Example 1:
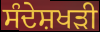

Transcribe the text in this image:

ਸੰਦੇਸ਼ਖੜੀ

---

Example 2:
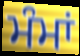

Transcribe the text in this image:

ਮੰਮਾਂ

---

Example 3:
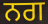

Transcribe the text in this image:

ਨਗ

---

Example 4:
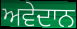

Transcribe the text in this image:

ਅਵੇਦਾਨ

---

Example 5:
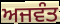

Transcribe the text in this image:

ਅਜਵੰਤ